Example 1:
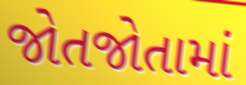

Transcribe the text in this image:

જોતજોતામાં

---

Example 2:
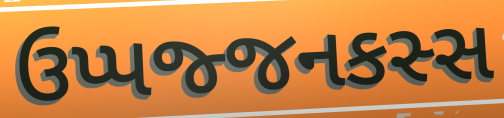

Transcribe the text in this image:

ઉપ્પજ્જનકસ્સ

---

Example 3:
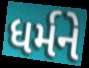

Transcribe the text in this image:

ધર્મને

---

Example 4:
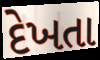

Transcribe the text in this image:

દેખતા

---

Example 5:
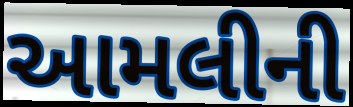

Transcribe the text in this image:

આમલીની